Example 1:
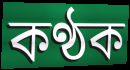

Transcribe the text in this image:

কণ্ঠক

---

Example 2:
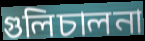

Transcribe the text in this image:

গুলিচালনা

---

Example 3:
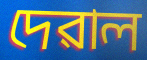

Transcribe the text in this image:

দেৱাল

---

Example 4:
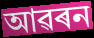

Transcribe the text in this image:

আৱৰন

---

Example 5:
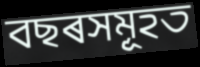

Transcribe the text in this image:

বছৰসমূহত